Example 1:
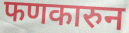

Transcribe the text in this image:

फणकारुन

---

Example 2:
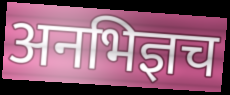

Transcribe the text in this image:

अनभिज्ञच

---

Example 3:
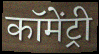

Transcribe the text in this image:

कॉमेंट्री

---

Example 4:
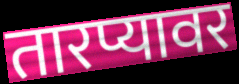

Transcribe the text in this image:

तारप्यावर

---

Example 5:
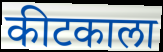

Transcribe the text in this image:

कीटकाला